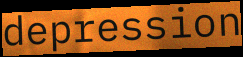
depression